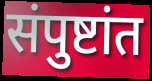
संपुष्टांत